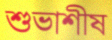
শুভাশীষ